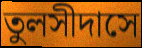
তুলসীদাসে